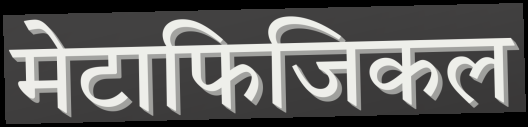
मेटाफिजिकल